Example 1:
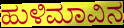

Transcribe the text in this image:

ಹುಳಿಮಾವಿನ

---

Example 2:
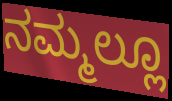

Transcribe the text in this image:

ನಮ್ಮಲ್ಲೂ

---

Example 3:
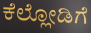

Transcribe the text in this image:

ಕೆಲ್ಲೋಡಿಗೆ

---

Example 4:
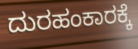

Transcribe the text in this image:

ದುರಹಂಕಾರಕ್ಕೆ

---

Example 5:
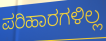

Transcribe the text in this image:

ಪರಿಹಾರಗಳಿಲ್ಲ